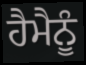
ਹੈਮੈਨੂੰ